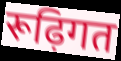
रूढ़िगत